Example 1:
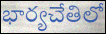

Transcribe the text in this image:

భార్యచేతిలో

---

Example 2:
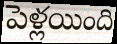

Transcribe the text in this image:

పెళ్లయింది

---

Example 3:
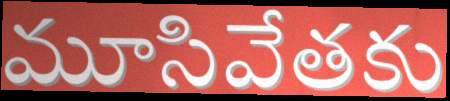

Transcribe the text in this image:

మూసివేతకు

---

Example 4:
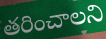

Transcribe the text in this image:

తరించాలని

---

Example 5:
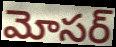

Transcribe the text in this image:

మోసర్